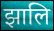
झालि